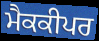
ਮੈਕਕੀਪਰ